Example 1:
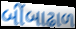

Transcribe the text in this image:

બીંબાઢાળ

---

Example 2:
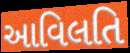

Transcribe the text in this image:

આવિલતિ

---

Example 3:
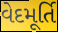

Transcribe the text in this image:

વેદમૂર્તિ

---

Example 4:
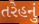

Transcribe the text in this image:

તરેહનું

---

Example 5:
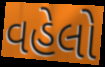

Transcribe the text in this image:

વહેલો